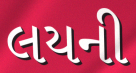
લયની